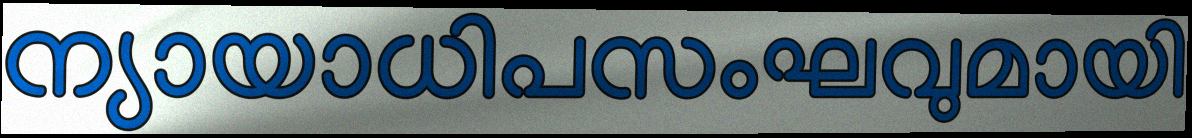
ന്യായാധിപസംഘവുമായി